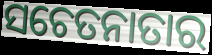
ସଚେତନାତାର